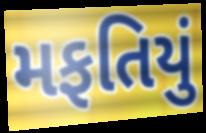
મફતિયું